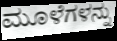
ಮೂಳೆಗಳನ್ನು